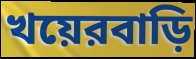
খয়েরবাড়ি